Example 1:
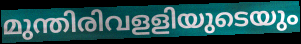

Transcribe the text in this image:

മുന്തിരിവളളിയുടെയും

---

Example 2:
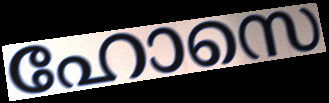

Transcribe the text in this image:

ഹോസെ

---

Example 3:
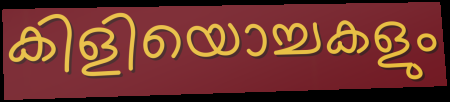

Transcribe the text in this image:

കിളിയൊച്ചകളും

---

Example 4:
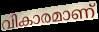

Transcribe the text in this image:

വികാരമാണ്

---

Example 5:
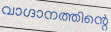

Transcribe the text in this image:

വാഗ്ദാനത്തിന്റെ